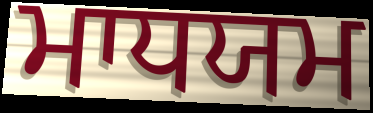
ਮਾਧਯਮ